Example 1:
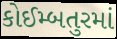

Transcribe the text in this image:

કોઈમ્બતુરમાં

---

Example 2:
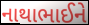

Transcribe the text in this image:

નાથાભાઈને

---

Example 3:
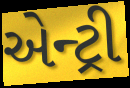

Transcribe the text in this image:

એન્‍ટ્રી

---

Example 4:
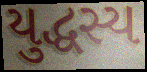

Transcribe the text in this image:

યુદ્ધસ્ય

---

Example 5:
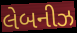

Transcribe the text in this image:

લેબનીઝ